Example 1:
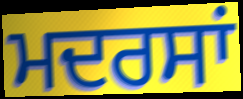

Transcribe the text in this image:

ਮਦਰਸਾਂ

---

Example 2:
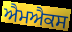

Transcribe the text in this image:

ਐਮਐਕਸ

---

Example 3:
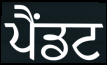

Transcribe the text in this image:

ਪੈਂਡਟ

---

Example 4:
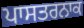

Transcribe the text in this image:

ਪਾਸਤਰਨਾਕ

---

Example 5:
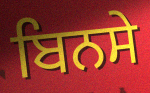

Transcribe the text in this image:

ਬਿਨਸੇ